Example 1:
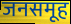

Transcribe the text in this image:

जनसमूह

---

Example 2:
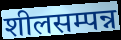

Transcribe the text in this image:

शीलसम्पन्न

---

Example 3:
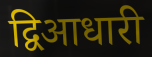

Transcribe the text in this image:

द्विआधारी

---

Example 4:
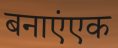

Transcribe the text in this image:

बनाएंएक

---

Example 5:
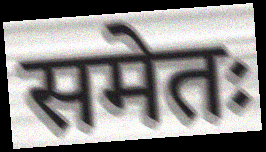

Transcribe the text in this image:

समेतः